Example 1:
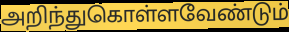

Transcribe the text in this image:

அறிந்துகொள்ளவேண்டும்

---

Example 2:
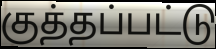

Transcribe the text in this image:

குத்தப்பட்டு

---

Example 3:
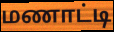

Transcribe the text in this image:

மணாட்டி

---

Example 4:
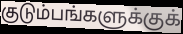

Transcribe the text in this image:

குடும்பங்களுக்குக்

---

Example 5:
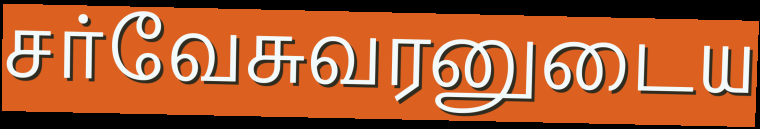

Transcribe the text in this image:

சர்வேசுவரனுடைய